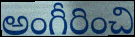
అంగీరించి